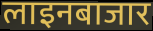
लाइनबाजार